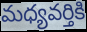
మధ్యవర్తికి